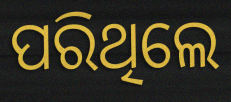
ପରିଥିଲେ